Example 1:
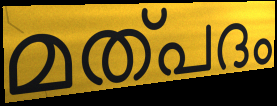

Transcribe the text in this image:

മത്പദം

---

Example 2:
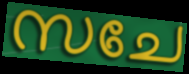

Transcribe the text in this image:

സചേ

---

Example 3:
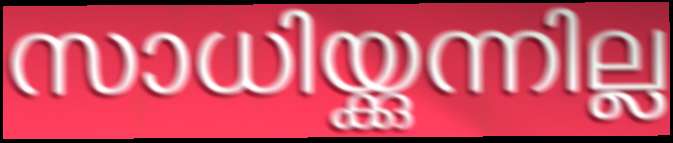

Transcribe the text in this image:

സാധിയ്ക്കുന്നില്ല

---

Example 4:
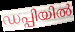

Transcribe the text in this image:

ഡപ്പിയിൽ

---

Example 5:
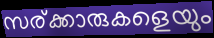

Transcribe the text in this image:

സര്ക്കാരുകളെയും